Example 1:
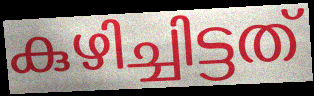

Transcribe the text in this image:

കുഴിച്ചിട്ടത്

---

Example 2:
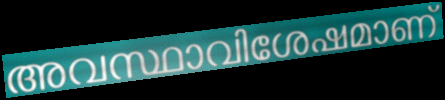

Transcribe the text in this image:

അവസ്ഥാവിശേഷമാണ്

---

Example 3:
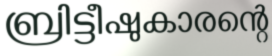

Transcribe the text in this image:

ബ്രിട്ടീഷുകാരന്റെ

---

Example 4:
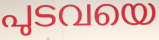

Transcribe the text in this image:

പുടവയെ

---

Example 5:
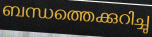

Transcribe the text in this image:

ബന്ധത്തെക്കുറിച്ചു